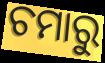
ଚମାରୁ